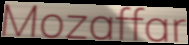
Mozaffar